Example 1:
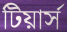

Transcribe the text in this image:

টিয়ার্স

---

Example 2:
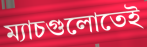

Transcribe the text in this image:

ম্যাচগুলোতেই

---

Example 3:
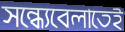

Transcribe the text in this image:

সন্ধ্যেবেলাতেই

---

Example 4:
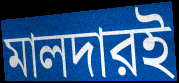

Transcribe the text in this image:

মালদারই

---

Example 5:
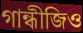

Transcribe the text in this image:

গান্ধীজিও